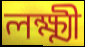
লক্ষ্মী